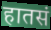
हातसं